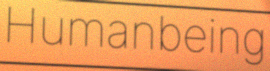
Humanbeing